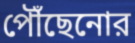
পৌঁছেনোর